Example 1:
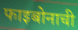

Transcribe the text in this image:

फाइबोनाची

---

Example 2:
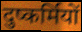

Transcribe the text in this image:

दुष्कर्मियों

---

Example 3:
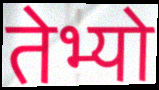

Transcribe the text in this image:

तेभ्यो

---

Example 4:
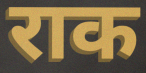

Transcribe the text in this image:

राक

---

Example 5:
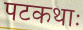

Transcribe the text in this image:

पटकथाः